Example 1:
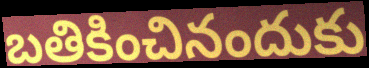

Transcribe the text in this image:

బతికించినందుకు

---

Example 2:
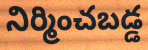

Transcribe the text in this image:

నిర్మించబడ్డ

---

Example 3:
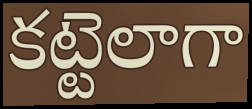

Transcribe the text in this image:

కట్టెలాగా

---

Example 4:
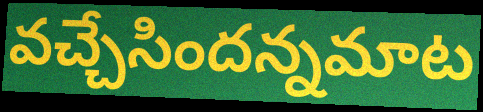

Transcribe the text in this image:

వచ్చేసిందన్నమాట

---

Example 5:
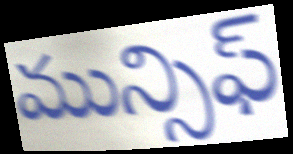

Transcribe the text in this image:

మున్సిఫ్